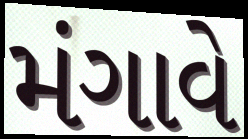
મંગાવે